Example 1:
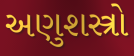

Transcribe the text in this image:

અણુશસ્ત્રો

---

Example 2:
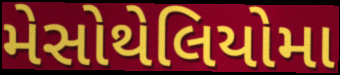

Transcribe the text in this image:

મેસોથેલિયોમા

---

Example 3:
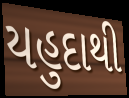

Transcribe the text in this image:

યહુદાથી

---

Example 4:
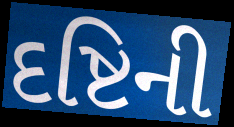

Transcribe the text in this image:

દષ્ટિની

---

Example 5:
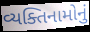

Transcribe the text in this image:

વ્યક્તિનામોનું